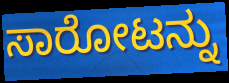
ಸಾರೋಟನ್ನು